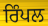
ਰਿੰਪਲ